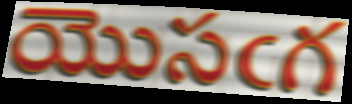
యొసఁగ